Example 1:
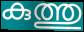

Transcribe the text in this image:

കുത്തു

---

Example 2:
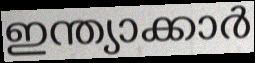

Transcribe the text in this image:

ഇന്ത്യാക്കാർ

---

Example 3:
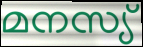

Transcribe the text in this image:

മനസ്യ്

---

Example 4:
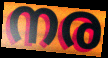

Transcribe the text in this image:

നര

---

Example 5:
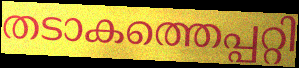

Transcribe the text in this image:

തടാകത്തെപ്പറ്റി